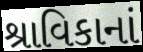
શ્રાવિકાનાં